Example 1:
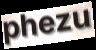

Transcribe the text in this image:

phezu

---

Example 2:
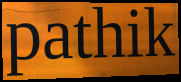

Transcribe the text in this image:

pathik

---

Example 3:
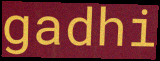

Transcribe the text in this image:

gadhi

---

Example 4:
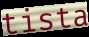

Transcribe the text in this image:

tista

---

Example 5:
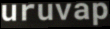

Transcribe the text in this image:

uruvap